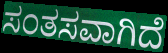
ಸಂತಸವಾಗಿದೆ